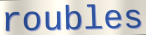
roubles